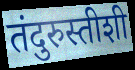
तंदुरुस्तीशी